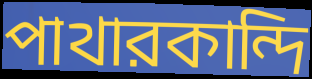
পাথারকান্দি